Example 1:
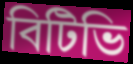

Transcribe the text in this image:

বিটিভি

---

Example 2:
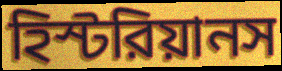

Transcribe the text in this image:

হিস্টরিয়ানস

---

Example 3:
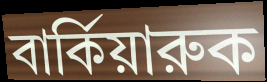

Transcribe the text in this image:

বার্কিয়ারুক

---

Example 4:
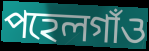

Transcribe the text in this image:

পহেলগাঁও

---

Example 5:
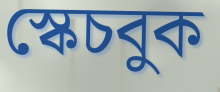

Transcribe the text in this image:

স্কেচবুক